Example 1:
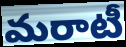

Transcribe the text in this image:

మరాటీ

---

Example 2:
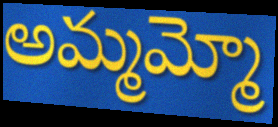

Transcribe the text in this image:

అమ్మమ్మో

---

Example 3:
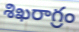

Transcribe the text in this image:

శిఖరాగ్రం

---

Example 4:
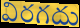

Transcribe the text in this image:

విరగదు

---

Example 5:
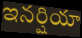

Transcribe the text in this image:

ఇనర్షియా